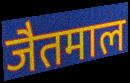
जैतमाल